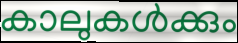
കാലുകൾക്കും